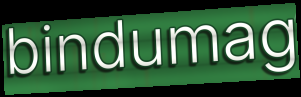
bindumag